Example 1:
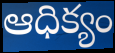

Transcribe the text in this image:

ఆధిక్యం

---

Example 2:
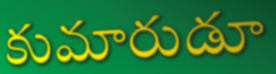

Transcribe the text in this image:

కుమారుడూ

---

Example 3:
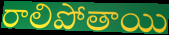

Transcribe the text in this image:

రాలిపోతాయి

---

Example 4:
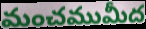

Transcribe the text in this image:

మంచముమీద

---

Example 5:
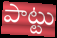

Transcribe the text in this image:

పాట్టు